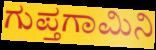
ಗುಪ್ತಗಾಮಿನಿ